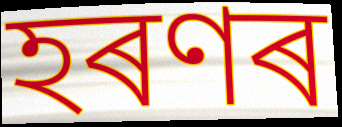
হৰণৰ